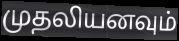
முதலியனவும்